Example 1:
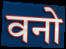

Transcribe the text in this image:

वनो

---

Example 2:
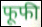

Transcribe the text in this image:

फूफी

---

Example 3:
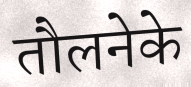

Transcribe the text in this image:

तौलनेके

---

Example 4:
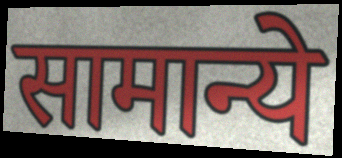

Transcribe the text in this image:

सामान्ये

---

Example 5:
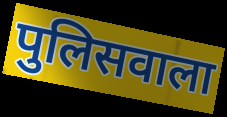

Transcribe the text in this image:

पुलिसवाला